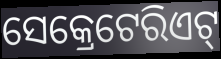
ସେକ୍ରେଟେରିଏଟ୍